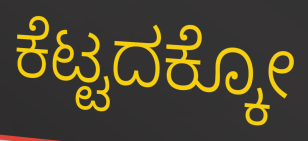
ಕೆಟ್ಟದಕ್ಕೋ